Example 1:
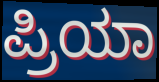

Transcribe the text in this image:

ಪ್ರಿಯಾ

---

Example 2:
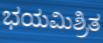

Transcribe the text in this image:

ಭಯಮಿಶ್ರಿತ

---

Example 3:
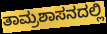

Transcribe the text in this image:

ತಾಮ್ರಶಾಸನದಲ್ಲಿ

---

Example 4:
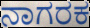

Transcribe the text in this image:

ನಾಗರಕ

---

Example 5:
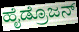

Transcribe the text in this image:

ಹೈಡ್ರೊಜನ್